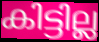
കിട്ടില്ല